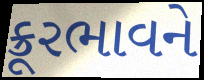
ક્રૂરભાવને